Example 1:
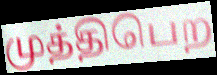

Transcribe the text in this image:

முத்திபெற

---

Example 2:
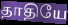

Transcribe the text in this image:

தாதியே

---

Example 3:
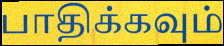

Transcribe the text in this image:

பாதிக்கவும்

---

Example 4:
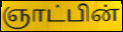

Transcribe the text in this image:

ஞாட்பின்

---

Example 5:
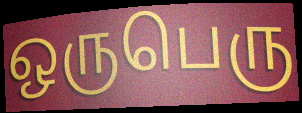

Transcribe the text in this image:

ஒருபெரு